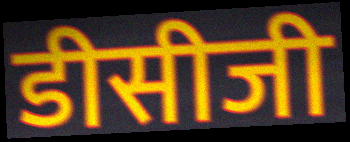
डीसीजी